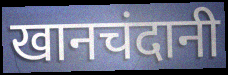
खानचंदानी